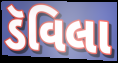
ડૅવિલા